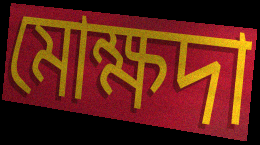
মোক্ষদা